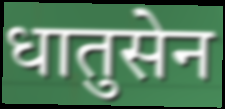
धातुसेन